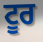
ਟੂਰ